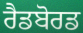
ਰੈਡਬੋਰਡ